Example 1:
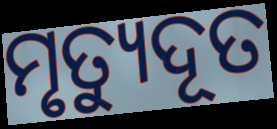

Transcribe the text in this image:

ମୃତ୍ୟୁଦୂତ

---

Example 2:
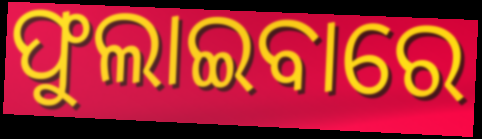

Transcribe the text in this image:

ଫୁଲାଇବାରେ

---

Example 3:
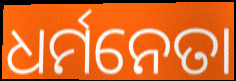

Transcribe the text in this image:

ଧର୍ମନେତା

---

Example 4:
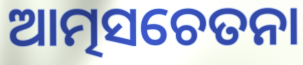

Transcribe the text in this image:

ଆତ୍ମସଚେତନା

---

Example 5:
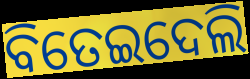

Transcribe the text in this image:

ବିତେଇଦେଲି